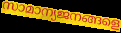
സാമാന്യജനങ്ങളെ